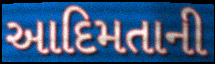
આદિમતાની